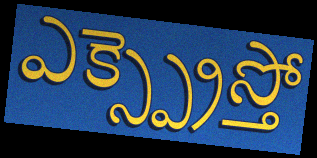
ఎక్స్ప్రెస్తో